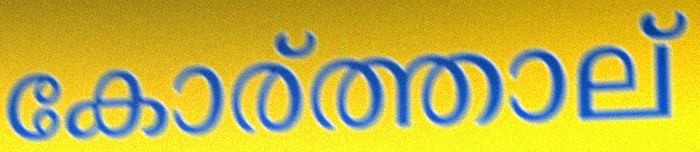
കോര്ത്താല്